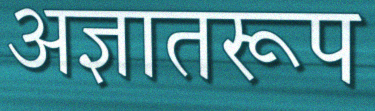
अज्ञातरूप